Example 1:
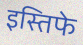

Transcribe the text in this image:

इस्तिफे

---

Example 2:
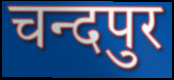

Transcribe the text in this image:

चन्दपुर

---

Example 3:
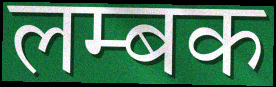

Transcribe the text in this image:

लम्बक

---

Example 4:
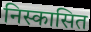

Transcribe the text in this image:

निस्कासित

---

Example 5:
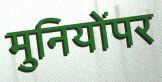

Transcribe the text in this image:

मुनियोंपर